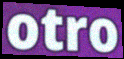
otro